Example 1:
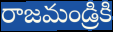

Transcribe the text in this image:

రాజమండ్రికి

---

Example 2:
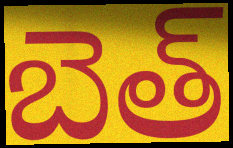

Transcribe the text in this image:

బెత్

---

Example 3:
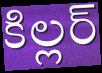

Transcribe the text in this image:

కిల్లర్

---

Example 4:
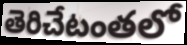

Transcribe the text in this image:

తెరిచేటంతలో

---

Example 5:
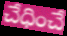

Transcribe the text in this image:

చేధించే